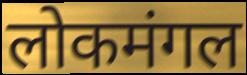
लोकमंगल